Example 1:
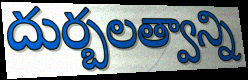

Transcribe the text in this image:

దుర్బలత్వాన్ని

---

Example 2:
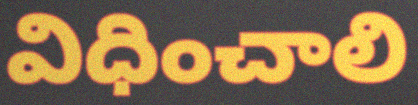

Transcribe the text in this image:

విధించాలి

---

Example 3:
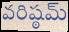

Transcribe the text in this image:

వరిష్ఠమ్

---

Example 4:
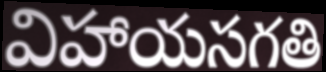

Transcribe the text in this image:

విహాయసగతి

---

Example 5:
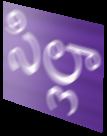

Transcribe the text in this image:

సిల్లా